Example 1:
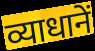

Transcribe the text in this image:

व्याधानें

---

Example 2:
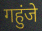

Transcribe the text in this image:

गहुंजे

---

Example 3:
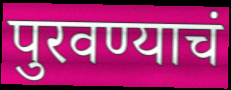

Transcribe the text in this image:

पुरवण्याचं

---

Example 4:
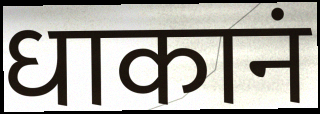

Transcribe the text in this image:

धाकानं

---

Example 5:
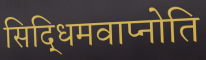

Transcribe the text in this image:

सिद्धिमवाप्नोति